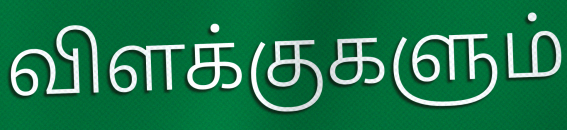
விளக்குகளும்